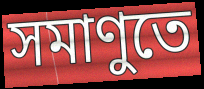
সমাণুতে